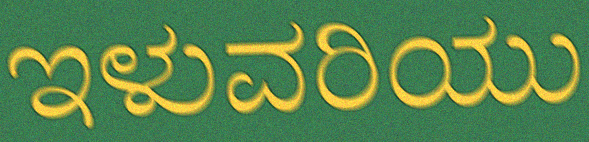
ಇಳುವರಿಯು